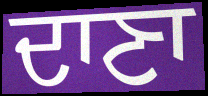
ਦਾਣਾ